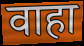
वाहा